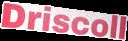
Driscoll